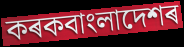
কৰকবাংলাদেশৰ